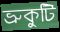
ভ্ৰুকুটি